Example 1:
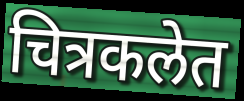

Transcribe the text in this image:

चित्रकलेत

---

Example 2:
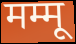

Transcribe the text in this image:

मम्मू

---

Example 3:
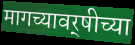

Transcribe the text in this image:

मागच्यावर्षीच्या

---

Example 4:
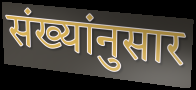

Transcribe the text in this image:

संख्यांनुसार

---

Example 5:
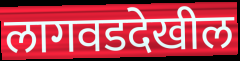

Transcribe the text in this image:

लागवडदेखील